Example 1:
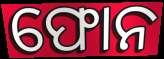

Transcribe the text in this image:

ଫୋନ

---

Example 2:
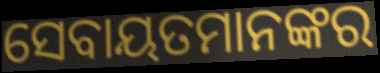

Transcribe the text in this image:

ସେବାୟତମାନଙ୍କର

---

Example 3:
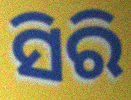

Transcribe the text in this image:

ସିରି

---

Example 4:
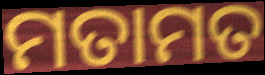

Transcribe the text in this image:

ମତାମତ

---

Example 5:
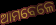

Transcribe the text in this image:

ଆମବେଳେ